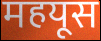
महयूस